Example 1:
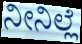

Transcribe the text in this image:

ನೀನಿಲ್ಲೆ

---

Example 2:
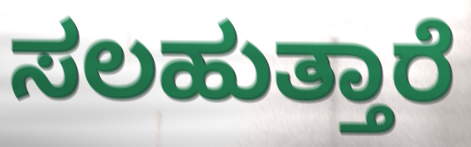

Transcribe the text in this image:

ಸಲಹುತ್ತಾರೆ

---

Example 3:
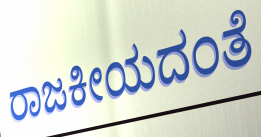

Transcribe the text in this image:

ರಾಜಕೀಯದಂತೆ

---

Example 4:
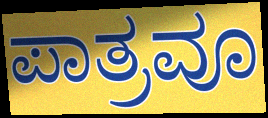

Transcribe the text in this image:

ಪಾತ್ರವೂ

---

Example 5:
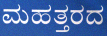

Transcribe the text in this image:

ಮಹತ್ತರದ